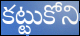
కట్టుకోని